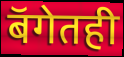
बॅगेतही